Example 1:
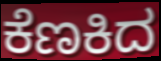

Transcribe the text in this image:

ಕೆಣಕಿದ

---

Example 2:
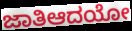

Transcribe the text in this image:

ಜಾತಿಆದಯೋ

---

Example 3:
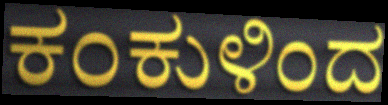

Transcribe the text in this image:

ಕಂಕುಳಿಂದ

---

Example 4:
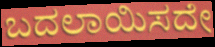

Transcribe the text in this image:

ಬದಲಾಯಿಸದೇ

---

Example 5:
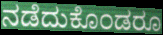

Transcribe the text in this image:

ನಡೆದುಕೊಂಡರೂ